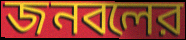
জনবলের